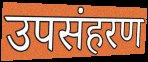
उपसंहरण